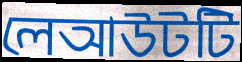
লেআউটটি